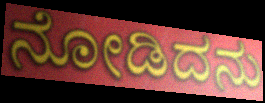
ನೋಡಿದನು